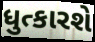
ધુત્કારશે